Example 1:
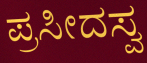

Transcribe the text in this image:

ಪ್ರಸೀದಸ್ವ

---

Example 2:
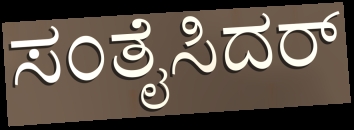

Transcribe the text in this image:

ಸಂತೈಸಿದರ್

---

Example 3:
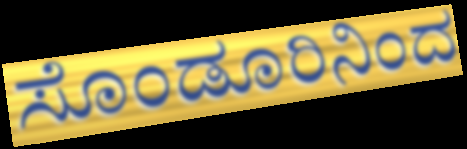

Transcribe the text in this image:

ಸೊಂಡೂರಿನಿಂದ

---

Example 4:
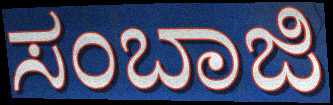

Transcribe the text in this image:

ಸಂಬಾಜಿ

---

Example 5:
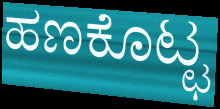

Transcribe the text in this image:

ಹಣಕೊಟ್ಟ